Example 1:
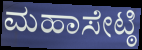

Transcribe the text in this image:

ಮಹಾಸೇಟ್ಠಿ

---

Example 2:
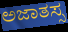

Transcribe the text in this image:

ಅಜಾತಸ್ಸ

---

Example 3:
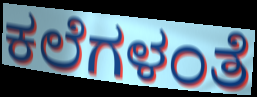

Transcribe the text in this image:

ಕಲೆಗಳಂತೆ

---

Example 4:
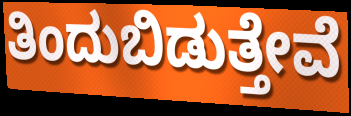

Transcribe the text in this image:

ತಿಂದುಬಿಡುತ್ತೇವೆ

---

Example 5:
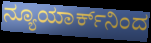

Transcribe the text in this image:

ನ್ಯೂಯಾರ್ಕ್‌ನಿಂದ